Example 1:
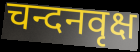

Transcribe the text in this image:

चन्दनवृक्ष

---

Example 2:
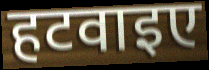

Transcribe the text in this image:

हटवाइए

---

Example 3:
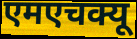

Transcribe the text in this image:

एमएचक्यू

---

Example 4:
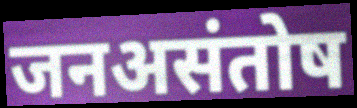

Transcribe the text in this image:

जनअसंतोष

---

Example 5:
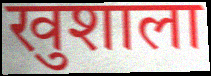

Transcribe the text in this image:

खुशाला